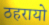
ठहरायो